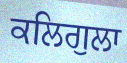
ਕਲਿਗੁਲਾ